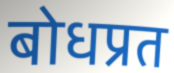
बोधप्रत